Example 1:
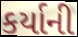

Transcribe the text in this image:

કર્યાની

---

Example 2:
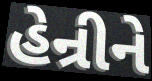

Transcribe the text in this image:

હેન્રીને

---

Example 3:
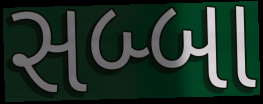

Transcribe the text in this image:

સબ્બા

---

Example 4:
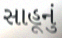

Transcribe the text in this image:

સાહૂનું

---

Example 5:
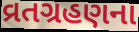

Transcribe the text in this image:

વ્રતગ્રહણના